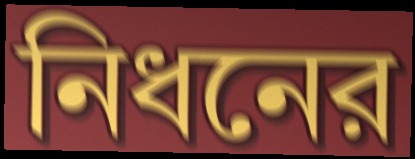
নিধনের